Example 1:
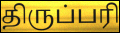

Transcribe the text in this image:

திருப்பரி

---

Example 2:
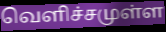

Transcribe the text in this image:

வெளிச்சமுள்ள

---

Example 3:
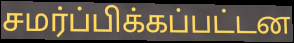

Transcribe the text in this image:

சமர்ப்பிக்கப்பட்டன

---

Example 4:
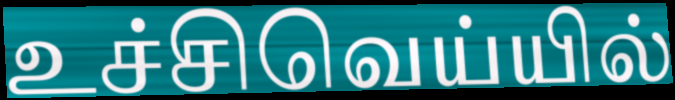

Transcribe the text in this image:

உச்சிவெய்யில்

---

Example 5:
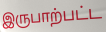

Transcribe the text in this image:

இருபாற்பட்ட